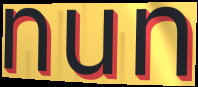
nun